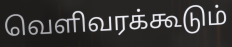
வெளிவரக்கூடும்